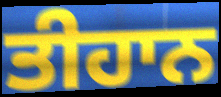
ਤੀਹਾਨ